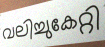
വലിച്ചുകേറ്റി